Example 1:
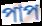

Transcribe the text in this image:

পাপ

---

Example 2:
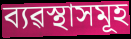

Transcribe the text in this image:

ব্যৱস্থাসমূহ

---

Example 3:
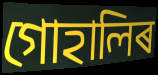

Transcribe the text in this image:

গোহালিৰ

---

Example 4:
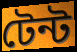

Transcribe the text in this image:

টেন্ট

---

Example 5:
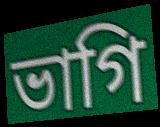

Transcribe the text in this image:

ভাগি